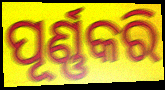
ପୂର୍ଣ୍ଣକରି